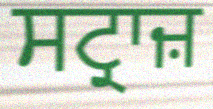
ਸਟ੍ਰਾਜ਼